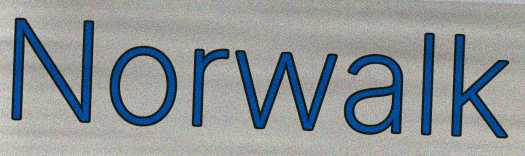
Norwalk